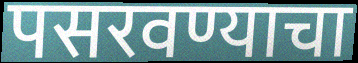
पसरवण्याचा